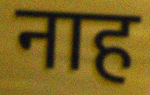
नाह